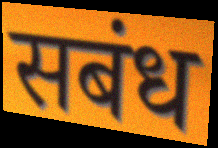
सबंध